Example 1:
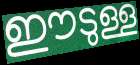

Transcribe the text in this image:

ഈടുള്ള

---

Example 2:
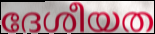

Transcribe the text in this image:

ദേശീയത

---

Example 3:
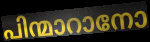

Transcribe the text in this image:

പിന്മാറാനോ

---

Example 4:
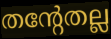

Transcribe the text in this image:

തന്റേതല്ല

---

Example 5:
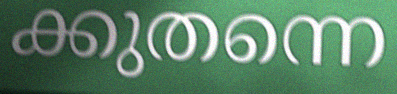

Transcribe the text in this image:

ക്കുതന്നെ